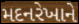
મદનરેખાને